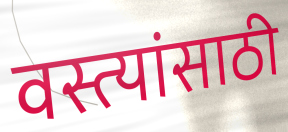
वस्त्यांसाठी